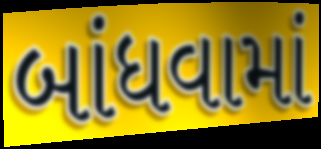
બાંધવામાં